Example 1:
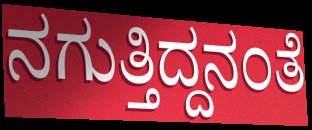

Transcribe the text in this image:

ನಗುತ್ತಿದ್ದನಂತೆ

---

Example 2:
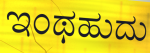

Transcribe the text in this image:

ಇಂಥಹುದು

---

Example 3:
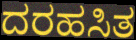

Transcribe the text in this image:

ದರಹಸಿತ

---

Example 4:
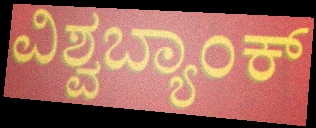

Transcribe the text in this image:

ವಿಶ್ವಬ್ಯಾಂಕ್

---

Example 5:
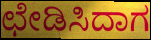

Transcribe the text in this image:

ಛೇಡಿಸಿದಾಗ